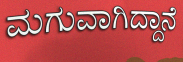
ಮಗುವಾಗಿದ್ದಾನೆ